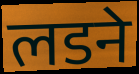
लडने